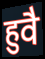
हुवै